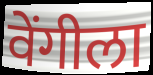
वेंगीला